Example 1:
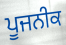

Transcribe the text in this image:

ਪੂਜਨੀਕ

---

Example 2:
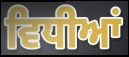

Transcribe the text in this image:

ਵਿਧੀਆਂ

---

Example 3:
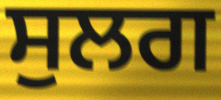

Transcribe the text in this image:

ਸੁਲਗ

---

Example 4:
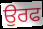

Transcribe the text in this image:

ਉਰਫ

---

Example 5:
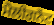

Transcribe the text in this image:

ਮੈਲੀਗਨੈਂਟ